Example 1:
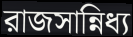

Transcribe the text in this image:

রাজসান্নিধ্য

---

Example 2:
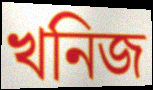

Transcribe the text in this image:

খনিজ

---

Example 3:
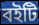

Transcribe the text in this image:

বইটি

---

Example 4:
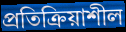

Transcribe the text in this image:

প্রতিক্রিয়াশীল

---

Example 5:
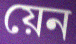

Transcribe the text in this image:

য়েন